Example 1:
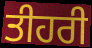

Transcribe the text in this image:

ਤੀਹਰੀ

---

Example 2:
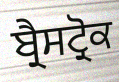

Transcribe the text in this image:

ਬ੍ਰੈਸਟ੍ਰੋਕ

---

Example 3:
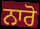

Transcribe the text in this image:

ਨਾਰੋ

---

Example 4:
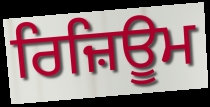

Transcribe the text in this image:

ਰਿਜ਼ਿਊਮ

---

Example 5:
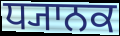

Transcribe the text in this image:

ਧ੍ਯਾਨਕ